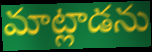
మాట్లాడను